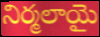
నిర్మలాయై